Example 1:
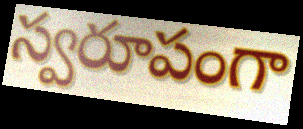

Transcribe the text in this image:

స్వరూపంగా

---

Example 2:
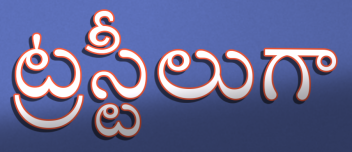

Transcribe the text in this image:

ట్రస్టీలుగా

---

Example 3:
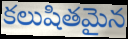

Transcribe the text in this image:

కలుషితమైన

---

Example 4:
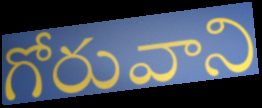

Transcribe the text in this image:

గోరువాని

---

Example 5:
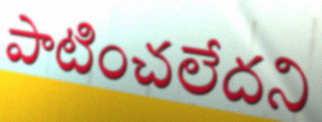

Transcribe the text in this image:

పాటించలేదని